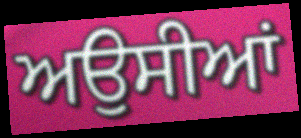
ਅਉਸੀਆਂ